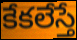
కేకలేస్తే